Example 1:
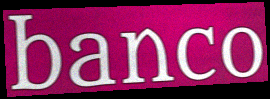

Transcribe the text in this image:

banco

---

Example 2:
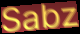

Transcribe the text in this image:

Sabz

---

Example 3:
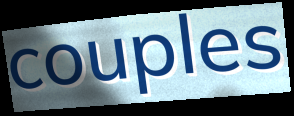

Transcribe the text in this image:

couples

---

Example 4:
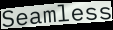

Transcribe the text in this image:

Seamless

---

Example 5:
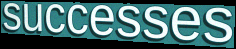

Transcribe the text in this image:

successes